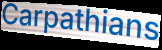
Carpathians